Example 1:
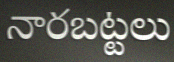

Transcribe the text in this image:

నారబట్టలు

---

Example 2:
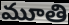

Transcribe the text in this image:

మూతి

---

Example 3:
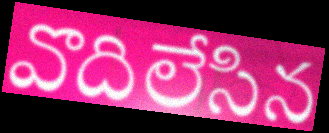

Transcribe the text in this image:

వొదిలేసిన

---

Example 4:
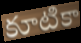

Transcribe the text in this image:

కూటికా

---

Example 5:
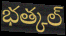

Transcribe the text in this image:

భత్కల్